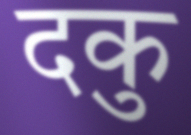
दकु